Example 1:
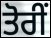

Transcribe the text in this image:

ਤੋਰੀਂ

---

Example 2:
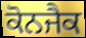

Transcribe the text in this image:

ਕੋਨਜੈਕ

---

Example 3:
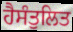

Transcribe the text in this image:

ਹੈਸੰਤੁਲਿਤ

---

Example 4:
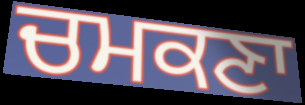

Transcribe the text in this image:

ਚਮਕਣਾ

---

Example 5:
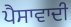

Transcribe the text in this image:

ਪੈਸਾਵਾਦੀ